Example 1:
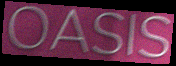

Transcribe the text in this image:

OASIS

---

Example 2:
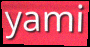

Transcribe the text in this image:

yami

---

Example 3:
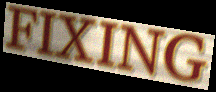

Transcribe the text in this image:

FIXING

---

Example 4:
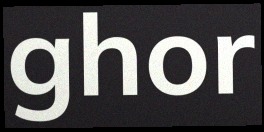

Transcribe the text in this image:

ghor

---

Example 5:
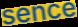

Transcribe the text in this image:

sence